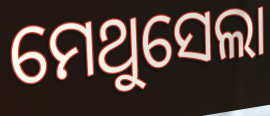
ମେଥୁସେଲା